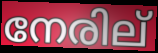
നേരില്